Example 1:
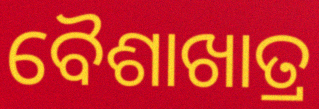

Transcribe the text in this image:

ବୈଶାଖାତ୍ର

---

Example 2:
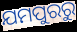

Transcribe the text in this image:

ଯମପୁରରୁ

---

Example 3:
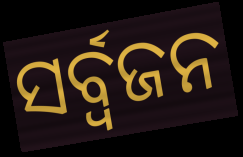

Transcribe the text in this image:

ସର୍ବ୍ବଜନ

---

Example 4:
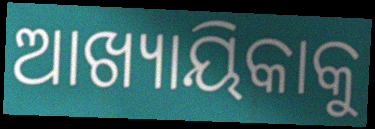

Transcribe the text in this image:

ଆଖ୍ୟାୟିକାକୁ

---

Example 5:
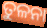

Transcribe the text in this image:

ତୁଳନା